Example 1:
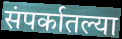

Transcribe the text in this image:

संपर्कातल्या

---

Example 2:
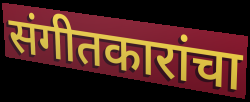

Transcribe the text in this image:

संगीतकारांचा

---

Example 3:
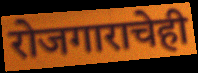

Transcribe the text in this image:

रोजगाराचेही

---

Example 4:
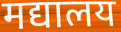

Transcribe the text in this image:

मद्यालय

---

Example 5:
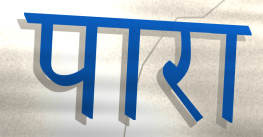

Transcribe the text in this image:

पारा